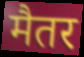
मैतर